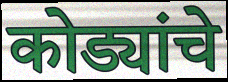
कोड्यांचे